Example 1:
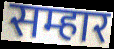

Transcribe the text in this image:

सम्हार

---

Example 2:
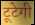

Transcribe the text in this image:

टूटेगी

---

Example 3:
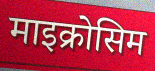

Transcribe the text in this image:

माइक्रोसिम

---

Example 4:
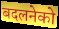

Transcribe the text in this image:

बदलनेको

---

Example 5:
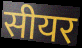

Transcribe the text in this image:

सीयर